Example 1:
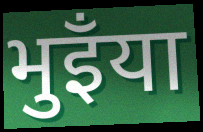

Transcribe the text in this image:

भुइँया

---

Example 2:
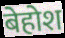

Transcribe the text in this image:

बेहोश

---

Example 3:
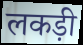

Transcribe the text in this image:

लकड़ी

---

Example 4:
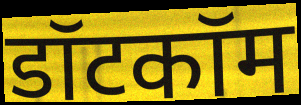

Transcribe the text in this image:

डॉटकॉम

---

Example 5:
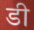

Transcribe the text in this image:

डी